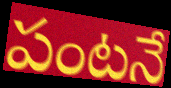
పంటనే